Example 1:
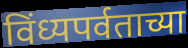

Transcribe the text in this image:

विंध्यपर्वताच्या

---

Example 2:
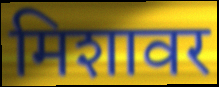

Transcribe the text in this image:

मिशावर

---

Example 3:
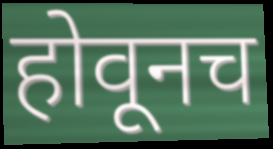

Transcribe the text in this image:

होवूनच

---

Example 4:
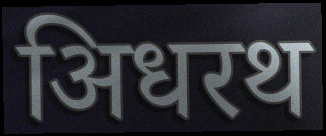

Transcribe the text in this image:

अिधरथ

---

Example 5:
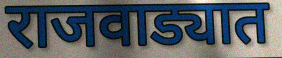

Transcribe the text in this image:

राजवाड्यात